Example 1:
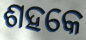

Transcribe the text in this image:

ଶହକେ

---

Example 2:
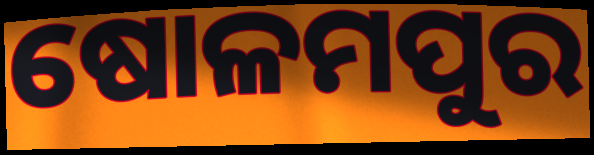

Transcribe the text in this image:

ଷୋଳମପୁର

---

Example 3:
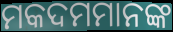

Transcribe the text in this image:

ମକଦମମାନଙ୍କ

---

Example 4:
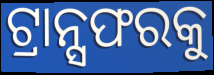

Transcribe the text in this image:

ଟ୍ରାନ୍ସଫରକୁ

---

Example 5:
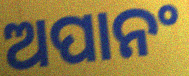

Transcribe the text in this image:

ଅପାନଂ